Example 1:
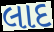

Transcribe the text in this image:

લાદ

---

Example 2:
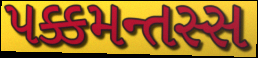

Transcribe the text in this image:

પક્કમન્તસ્સ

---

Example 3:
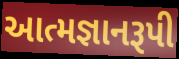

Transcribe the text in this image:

આત્મજ્ઞાનરૂપી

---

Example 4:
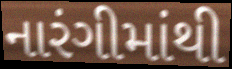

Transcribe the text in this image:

નારંગીમાંથી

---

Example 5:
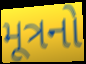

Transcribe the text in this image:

મૂત્રનો